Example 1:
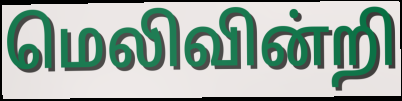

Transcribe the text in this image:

மெலிவின்றி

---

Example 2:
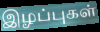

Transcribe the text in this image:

இழப்புகள்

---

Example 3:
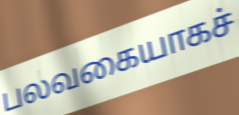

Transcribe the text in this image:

பலவகையாகச்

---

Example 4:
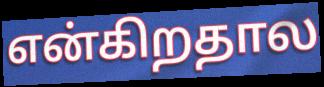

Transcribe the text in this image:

என்கிறதால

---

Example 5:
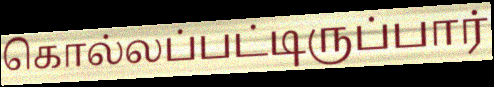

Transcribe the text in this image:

கொல்லப்பட்டிருப்பார்